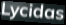
Lycidas